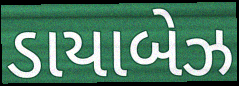
ડાયાબેઝ